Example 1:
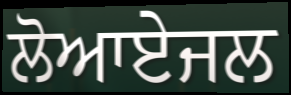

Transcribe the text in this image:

ਲੋਆਏਜਲ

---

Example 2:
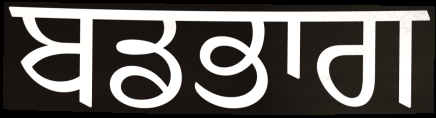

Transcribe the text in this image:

ਬਡਭਾਗ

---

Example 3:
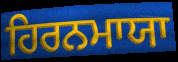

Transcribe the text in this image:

ਹਿਰਨਮਾਯਾ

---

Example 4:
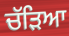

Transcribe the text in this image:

ਚੱੜਿਆ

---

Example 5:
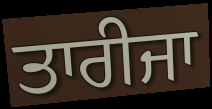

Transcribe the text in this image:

ਤਾਰੀਜਾ